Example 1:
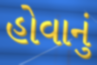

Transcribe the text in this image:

હોવાનું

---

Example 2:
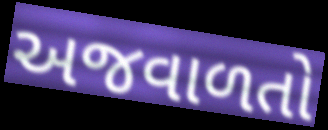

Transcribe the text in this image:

અજવાળતો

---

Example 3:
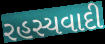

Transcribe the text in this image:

રહસ્યવાદી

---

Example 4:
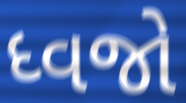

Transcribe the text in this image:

ધ્વજો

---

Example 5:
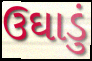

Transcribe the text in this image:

ઉઘાડું